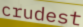
crudest